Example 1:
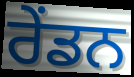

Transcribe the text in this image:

ਰੇਂਡਨ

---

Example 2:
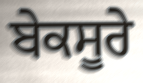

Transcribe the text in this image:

ਬੇਕਸੂਰੇ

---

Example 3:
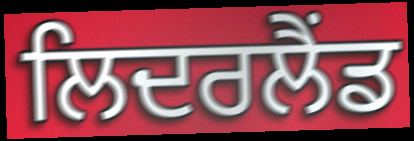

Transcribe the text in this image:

ਲਿਦਰਲੈਂਡ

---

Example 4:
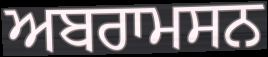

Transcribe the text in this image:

ਅਬਰਾਮਸਨ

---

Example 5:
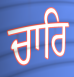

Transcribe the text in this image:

ਚਾਰਿ